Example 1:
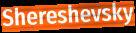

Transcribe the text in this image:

Shereshevsky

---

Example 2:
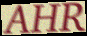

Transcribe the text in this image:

AHR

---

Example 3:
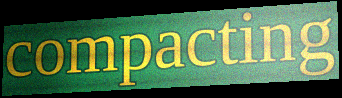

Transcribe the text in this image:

compacting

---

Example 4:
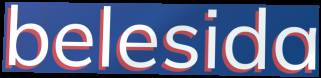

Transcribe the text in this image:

belesida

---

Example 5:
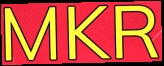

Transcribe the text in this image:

MKR